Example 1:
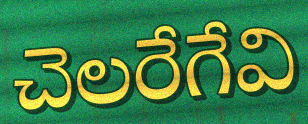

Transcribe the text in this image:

చెలరేగేవి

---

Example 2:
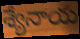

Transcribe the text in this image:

శ్యేనాయ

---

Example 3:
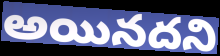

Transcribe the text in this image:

అయినదని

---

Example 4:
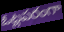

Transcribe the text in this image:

ఓట్లపరంగా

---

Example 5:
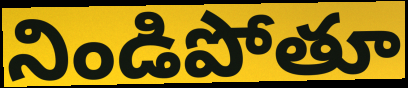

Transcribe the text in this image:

నిండిపోతూ